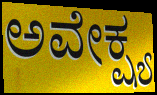
ಅವೇಕ್ಷ್ಯ